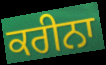
ਕਰੀਨਾ